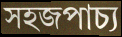
সহজপাচ্য